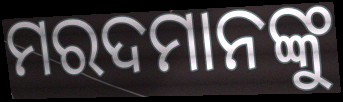
ମରଦମାନଙ୍କୁ